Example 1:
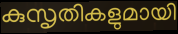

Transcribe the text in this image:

കുസൃതികളുമായി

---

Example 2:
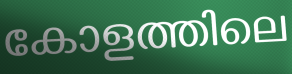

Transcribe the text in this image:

കോളത്തിലെ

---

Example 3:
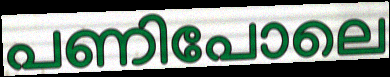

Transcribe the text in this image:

പണിപോലെ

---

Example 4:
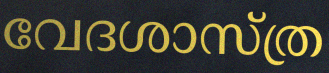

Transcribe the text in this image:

വേദശാസ്ത്ര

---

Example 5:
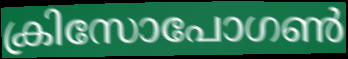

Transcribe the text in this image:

ക്രിസോപോഗൺ